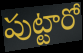
పుట్టారో